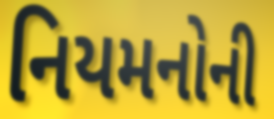
નિયમનોની